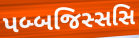
પબ્બજિસ્સસિ